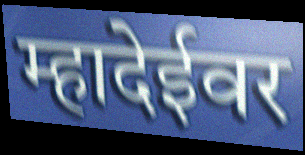
म्हादेईवर